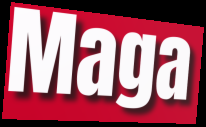
Maga